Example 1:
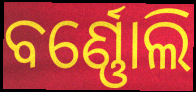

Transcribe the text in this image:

ବର୍ଣ୍ଣୋଲି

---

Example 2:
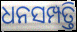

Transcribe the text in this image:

ଧନସମ୍ପତ୍ତି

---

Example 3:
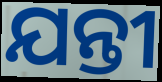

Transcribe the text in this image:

ଯନ୍ତୀ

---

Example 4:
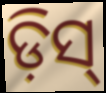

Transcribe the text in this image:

ଡ଼ିସ୍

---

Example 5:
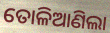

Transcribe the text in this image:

ତୋଳିଆଣିଲା